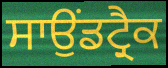
ਸਾਉਂਡਟ੍ਰੈਕ